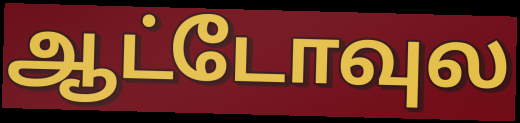
ஆட்டோவுல